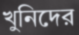
খুনিদের